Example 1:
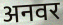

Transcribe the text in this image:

अनवर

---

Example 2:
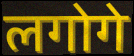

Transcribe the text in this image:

लगोगे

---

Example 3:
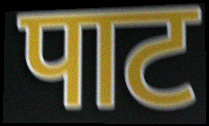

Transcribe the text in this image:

पाट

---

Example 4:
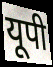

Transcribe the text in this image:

यूपी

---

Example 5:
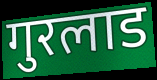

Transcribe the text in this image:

गुरलाड